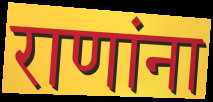
राणांना